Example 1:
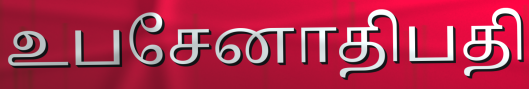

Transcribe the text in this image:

உபசேனாதிபதி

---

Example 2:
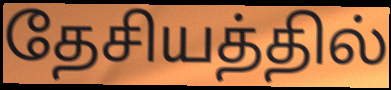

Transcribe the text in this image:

தேசியத்தில்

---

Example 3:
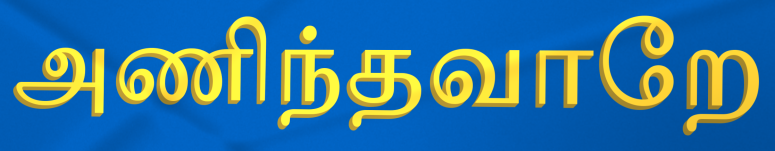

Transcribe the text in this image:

அணிந்தவாறே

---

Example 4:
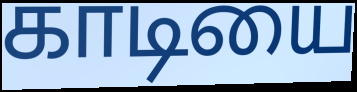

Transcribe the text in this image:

காடியை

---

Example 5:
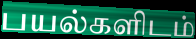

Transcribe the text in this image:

பயல்களிடம்